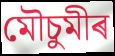
মৌচুমীৰ